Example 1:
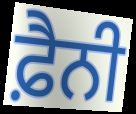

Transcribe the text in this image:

ਫ਼ੈਨੀ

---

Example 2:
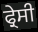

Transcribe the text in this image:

ਫ੍ਰੇਸੀ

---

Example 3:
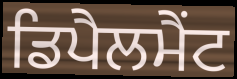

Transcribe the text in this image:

ਡਿਪੈਲਮੈਂਟ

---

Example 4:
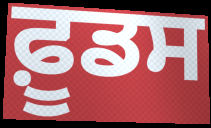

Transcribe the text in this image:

ਫ਼ੂਡਸ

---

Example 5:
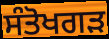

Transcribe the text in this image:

ਸੰਤੋਖਗੜ